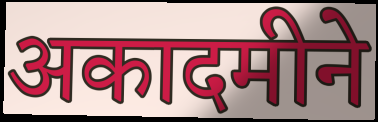
अकादमीने